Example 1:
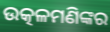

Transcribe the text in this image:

ଉତ୍କଳମଣିଙ୍କର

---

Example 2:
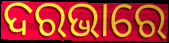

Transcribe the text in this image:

ଦରଭାରେ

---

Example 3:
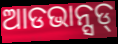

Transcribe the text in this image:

ଆଡଭାନ୍ସଡ୍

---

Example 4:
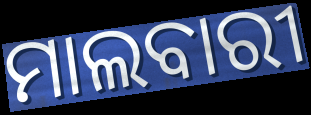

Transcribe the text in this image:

ମାଲବାରୀ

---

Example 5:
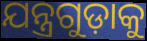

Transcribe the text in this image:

ଯନ୍ତ୍ରଗୁଡ଼ାକୁ